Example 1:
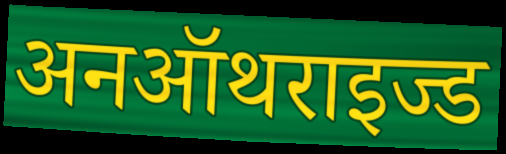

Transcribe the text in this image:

अनऑथराइज्ड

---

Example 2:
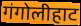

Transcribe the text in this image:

गंगोलीहाट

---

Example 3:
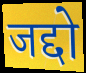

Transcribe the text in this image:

जद्दो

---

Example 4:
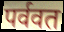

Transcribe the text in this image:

पर्ववत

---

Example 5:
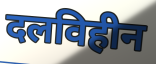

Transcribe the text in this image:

दलविहीन